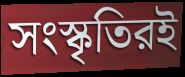
সংস্কৃতিরই